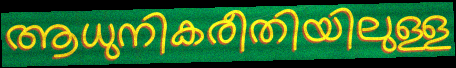
ആധുനികരീതിയിലുള്ള